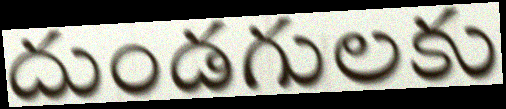
దుండగులకు